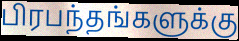
பிரபந்தங்களுக்கு